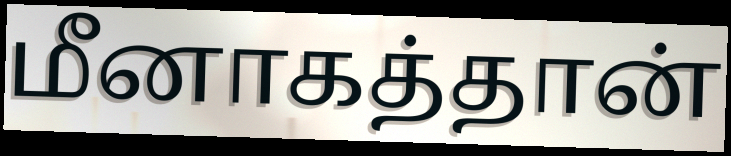
மீனாகத்தான்